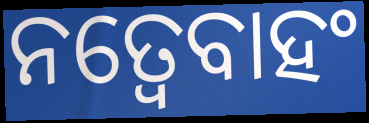
ନତ୍ୱେବାହଂ